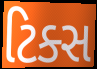
ટિક્સ